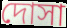
দোসা